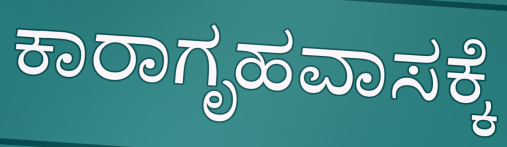
ಕಾರಾಗೃಹವಾಸಕ್ಕೆ